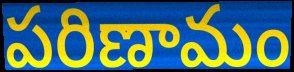
పరిణామం